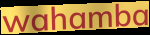
wahamba